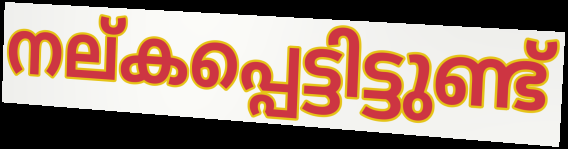
നല്കപ്പെട്ടിട്ടുണ്ട്